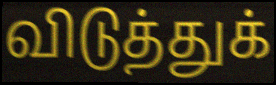
விடுத்துக்